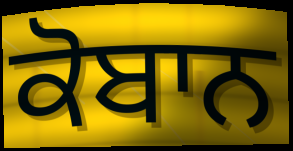
ਕੋਬਾਨ